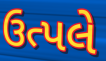
ઉત્પલે